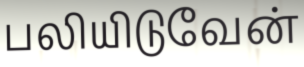
பலியிடுவேன்